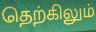
தெற்கிலும்